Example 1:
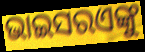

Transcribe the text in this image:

ଭାଇସରଏଙ୍କୁ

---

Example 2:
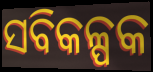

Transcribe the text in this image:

ସବିକଳ୍ପକ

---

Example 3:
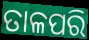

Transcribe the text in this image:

ତାଳପରି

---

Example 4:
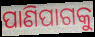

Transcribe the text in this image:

ପାଣିପାଗକୁ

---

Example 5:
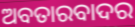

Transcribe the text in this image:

ଅବତାରବାଦର